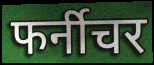
फर्नीचर